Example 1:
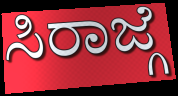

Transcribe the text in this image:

ಸಿರಾಜ್ಗೆ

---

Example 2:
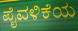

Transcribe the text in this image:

ಪೈವಳಿಕೆಯ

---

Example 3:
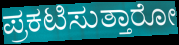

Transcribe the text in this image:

ಪ್ರಕಟಿಸುತ್ತಾರೋ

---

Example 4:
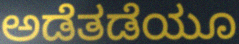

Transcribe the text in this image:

ಅಡೆತಡೆಯೂ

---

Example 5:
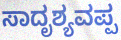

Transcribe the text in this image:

ಸಾದೃಶ್ಯವಪ್ಪ